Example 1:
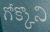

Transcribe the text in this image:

గోక్కొని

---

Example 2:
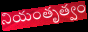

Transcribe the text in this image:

నియంతృత్వం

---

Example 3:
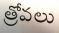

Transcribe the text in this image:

త్రోవలు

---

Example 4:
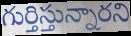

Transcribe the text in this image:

గుర్తిస్తున్నారని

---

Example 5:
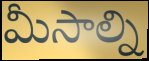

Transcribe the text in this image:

మీసాల్ని